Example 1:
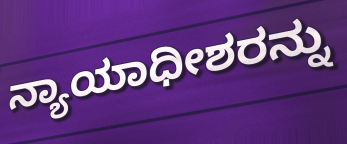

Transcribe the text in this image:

ನ್ಯಾಯಾಧೀಶರನ್ನು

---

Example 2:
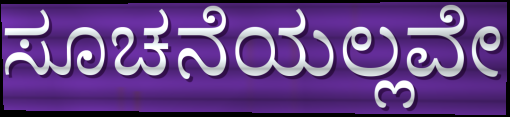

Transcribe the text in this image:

ಸೂಚನೆಯಲ್ಲವೇ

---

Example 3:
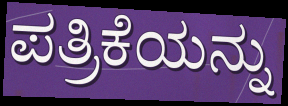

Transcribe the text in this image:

ಪತ್ರಿಕೆಯನ್ನು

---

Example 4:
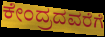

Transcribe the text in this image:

ಕೇಂದ್ರದವರೆಗೆ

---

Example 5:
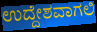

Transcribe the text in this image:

ಉದ್ದೇಶವಾಗಲಿ